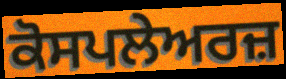
ਕੋਸਪਲੇਅਰਜ਼